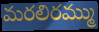
మరలిరమ్ము